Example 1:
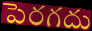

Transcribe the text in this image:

పెరగదు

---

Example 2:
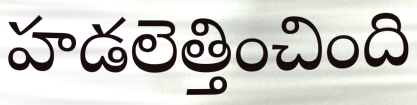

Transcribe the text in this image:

హడలెత్తించింది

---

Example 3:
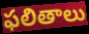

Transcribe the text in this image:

ఫలితాలు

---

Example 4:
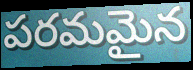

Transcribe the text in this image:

పరమమైన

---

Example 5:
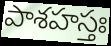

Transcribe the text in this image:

పాశహస్తః